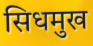
सिधमुख